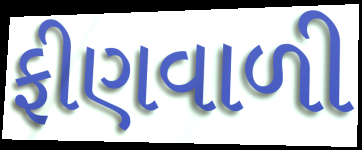
ફીણવાળી